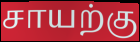
சாயற்கு